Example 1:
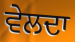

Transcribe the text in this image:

ਵੇਲਦਾ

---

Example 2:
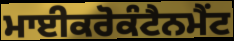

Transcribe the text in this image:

ਮਾਈਕਰੋਕੰਟੈਨਮੈਂਟ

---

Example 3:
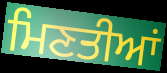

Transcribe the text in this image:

ਮਿਣਤੀਆਂ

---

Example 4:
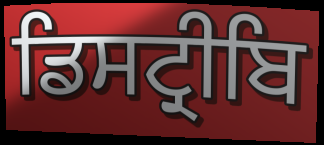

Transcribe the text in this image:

ਡਿਸਟ੍ਰੀਬਿ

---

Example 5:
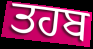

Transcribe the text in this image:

ਤਹਬ